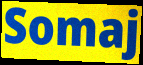
Somaj